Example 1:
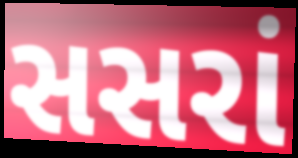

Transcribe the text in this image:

સસરાં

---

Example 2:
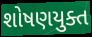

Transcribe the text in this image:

શોષણયુક્ત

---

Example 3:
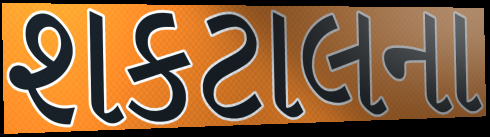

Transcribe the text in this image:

શકટાલના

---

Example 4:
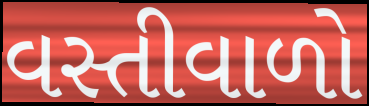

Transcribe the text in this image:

વસ્તીવાળો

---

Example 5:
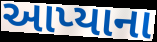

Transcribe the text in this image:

આપ્યાના